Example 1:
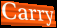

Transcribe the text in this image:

Carry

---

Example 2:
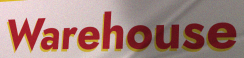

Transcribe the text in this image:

Warehouse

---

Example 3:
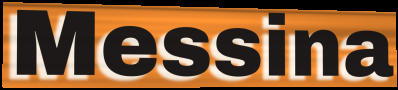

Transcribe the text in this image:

Messina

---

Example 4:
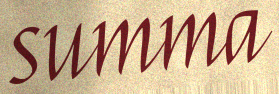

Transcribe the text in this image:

summa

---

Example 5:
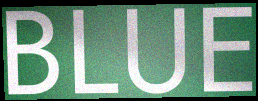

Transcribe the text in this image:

BLUE